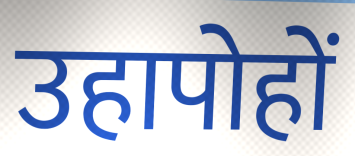
उहापोहों